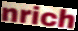
nrich